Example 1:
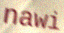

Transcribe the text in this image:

nawi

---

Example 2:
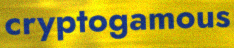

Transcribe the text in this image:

cryptogamous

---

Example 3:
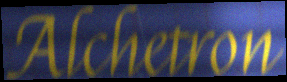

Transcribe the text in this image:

Alchetron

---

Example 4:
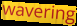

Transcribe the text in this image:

wavering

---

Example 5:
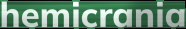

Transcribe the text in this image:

hemicrania